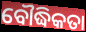
ବୌଦ୍ଧିକତା